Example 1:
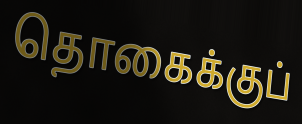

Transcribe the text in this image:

தொகைக்குப்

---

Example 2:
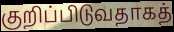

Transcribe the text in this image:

குறிப்பிடுவதாகத்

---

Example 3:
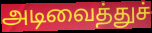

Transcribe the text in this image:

அடிவைத்துச்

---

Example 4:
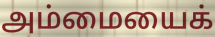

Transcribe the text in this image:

அம்மையைக்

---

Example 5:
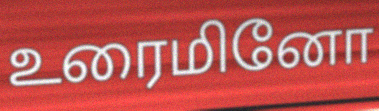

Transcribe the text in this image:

உரைமினோ